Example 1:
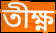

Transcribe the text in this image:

তীক্ষ্ণ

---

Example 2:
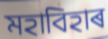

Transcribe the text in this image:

মহাবিহাৰ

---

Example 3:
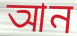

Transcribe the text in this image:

আন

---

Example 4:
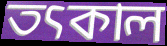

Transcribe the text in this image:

তৎকাল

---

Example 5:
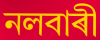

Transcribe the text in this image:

নলবাৰী